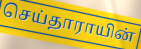
செய்தாராயின்